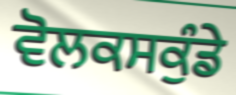
ਵੋਲਕਸਕੁੰਡੇ